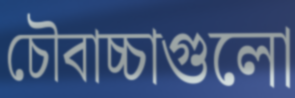
চৌবাচ্চাগুলো